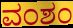
ವಂಶಂ